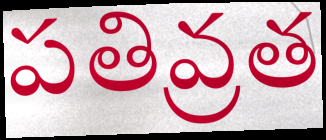
పతివ్రత